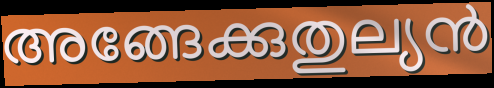
അങ്ങേക്കുതുല്യൻ